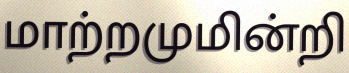
மாற்றமுமின்றி